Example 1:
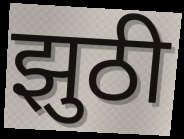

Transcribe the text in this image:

झुठी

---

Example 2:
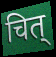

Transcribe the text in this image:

चित्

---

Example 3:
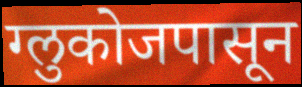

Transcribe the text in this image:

ग्लुकोजपासून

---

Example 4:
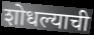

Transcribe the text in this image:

शोधल्याची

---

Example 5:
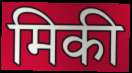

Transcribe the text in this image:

मिकी